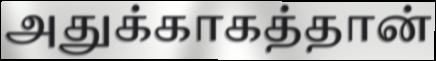
அதுக்காகத்தான்